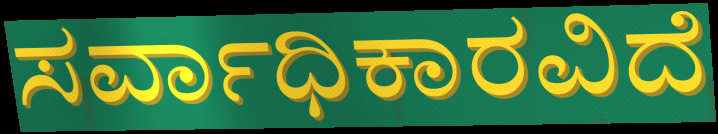
ಸರ್ವಾಧಿಕಾರವಿದೆ